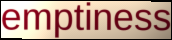
emptiness